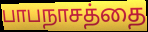
பாபநாசத்தை